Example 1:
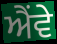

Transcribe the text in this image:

ਐਂਵੇ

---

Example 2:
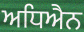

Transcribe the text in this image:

ਅਧਿਐਨ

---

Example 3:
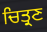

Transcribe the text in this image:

ਚਿਤ੍ਰਣ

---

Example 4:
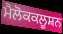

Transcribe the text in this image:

ਮੈਲੋਕਕਲੂਸ਼ਨ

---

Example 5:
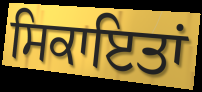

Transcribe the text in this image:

ਸਿਕਾਇਤਾਂ